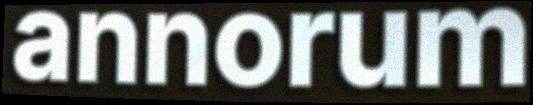
annorum